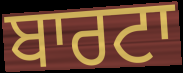
ਬਾਰਟਾ